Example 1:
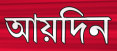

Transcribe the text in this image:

আয়দিন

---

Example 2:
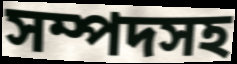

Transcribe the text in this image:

সম্পদসহ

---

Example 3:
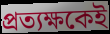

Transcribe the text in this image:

প্রত্যক্ষকেই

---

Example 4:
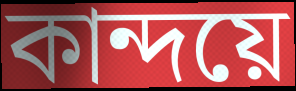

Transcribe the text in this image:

কান্দয়ে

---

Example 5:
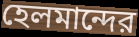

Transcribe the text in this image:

হেলমান্দের